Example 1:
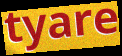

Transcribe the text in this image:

tyare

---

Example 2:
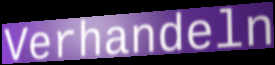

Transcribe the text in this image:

Verhandeln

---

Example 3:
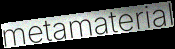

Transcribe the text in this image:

metamaterial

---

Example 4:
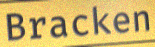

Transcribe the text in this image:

Bracken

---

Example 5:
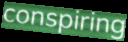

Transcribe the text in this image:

conspiring